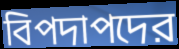
বিপদাপদের